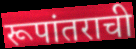
रूपांतराची